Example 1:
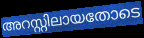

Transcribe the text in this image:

അറസ്റ്റിലായതോടെ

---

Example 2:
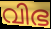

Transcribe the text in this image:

വിഭ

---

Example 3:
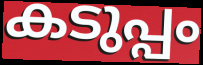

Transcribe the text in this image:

കടുപ്പം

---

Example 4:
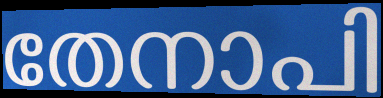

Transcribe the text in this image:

തേനാപി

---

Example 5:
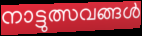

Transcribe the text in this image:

നാട്ടുത്സവങ്ങൾ